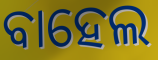
ବାହେଲ